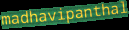
madhavipanthal